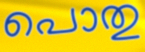
പൊതു